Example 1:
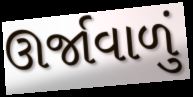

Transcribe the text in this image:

ઊર્જાવાળું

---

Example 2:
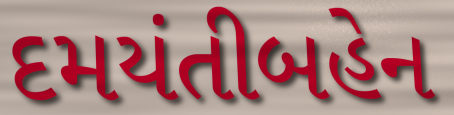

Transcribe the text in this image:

દમયંતીબહેન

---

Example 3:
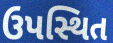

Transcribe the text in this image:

ઉપસ્થિત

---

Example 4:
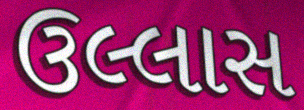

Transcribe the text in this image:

ઉલ્લાસ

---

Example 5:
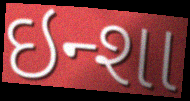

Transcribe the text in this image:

ઇન્શા